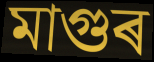
মাগুৰ